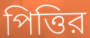
পিত্তির